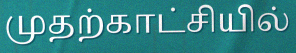
முதற்காட்சியில்